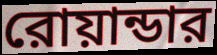
রোয়ান্ডার